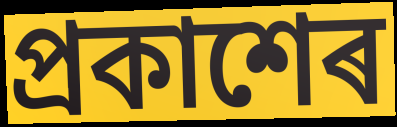
প্ৰকাশেৰ